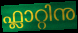
ഫ്ലാറ്റിനു